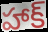
హాక్